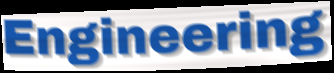
Engineering